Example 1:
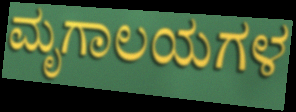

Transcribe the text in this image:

ಮೃಗಾಲಯಗಳ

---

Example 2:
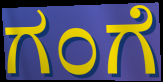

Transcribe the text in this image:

ಗಂಗೆ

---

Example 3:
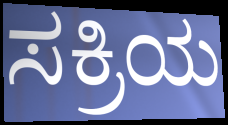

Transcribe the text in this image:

ಸಕ್ರಿಯ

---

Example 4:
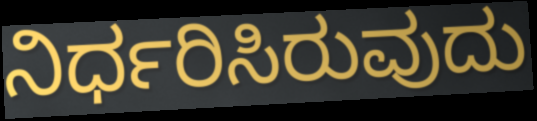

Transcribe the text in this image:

ನಿರ್ಧರಿಸಿರುವುದು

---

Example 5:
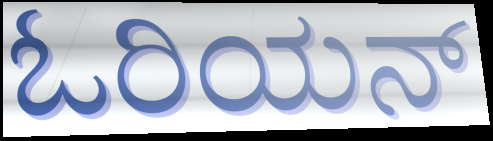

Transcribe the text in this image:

ಓರಿಯನ್